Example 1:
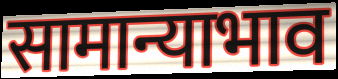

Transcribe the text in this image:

सामान्याभाव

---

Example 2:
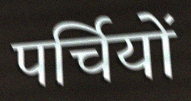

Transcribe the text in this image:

पर्चियों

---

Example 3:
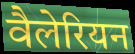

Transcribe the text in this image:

वैलेरियन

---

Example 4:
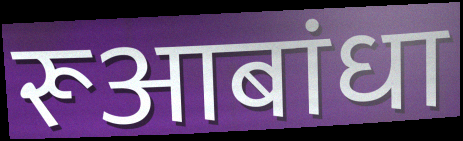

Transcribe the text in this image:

रूआबांधा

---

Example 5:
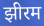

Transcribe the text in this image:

झीरम